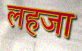
लहजा